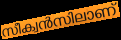
സീക്വൻസിലാണ്